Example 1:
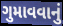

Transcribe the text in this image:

ગુમાવવાનું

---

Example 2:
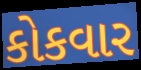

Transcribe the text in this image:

કોકવાર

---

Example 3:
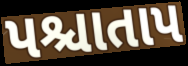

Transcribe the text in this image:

પશ્ચાતાપ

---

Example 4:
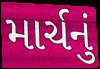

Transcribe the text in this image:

માર્ચનું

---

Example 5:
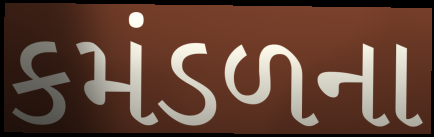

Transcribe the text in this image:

કમંડળના